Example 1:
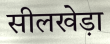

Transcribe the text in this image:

सीलखेड़ा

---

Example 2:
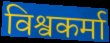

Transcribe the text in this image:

विश्वकर्मा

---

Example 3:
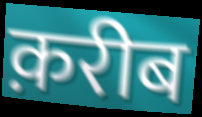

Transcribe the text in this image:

क़रीब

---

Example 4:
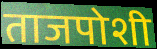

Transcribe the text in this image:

ताजपोशी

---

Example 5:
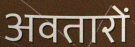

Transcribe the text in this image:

अवतारों